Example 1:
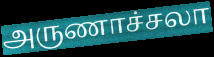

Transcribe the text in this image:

அருணாச்சலா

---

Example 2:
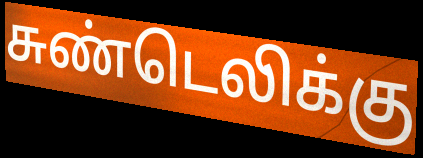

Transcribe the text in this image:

சுண்டெலிக்கு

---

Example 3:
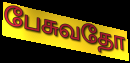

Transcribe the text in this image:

பேசுவதோ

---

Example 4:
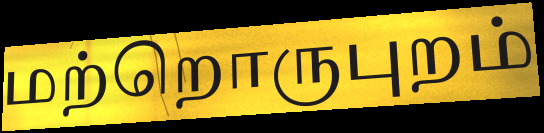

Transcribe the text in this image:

மற்றொருபுறம்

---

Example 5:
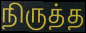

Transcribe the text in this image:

நிருத்த